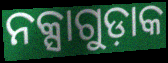
ନକ୍ସାଗୁଡ଼ାକ